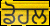
ਡੋਹਲ